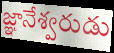
జ్ఞానేశ్వరుడు